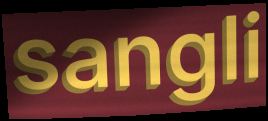
sangli